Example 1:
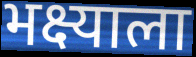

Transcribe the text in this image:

भक्ष्याला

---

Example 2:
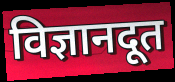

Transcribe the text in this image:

विज्ञानदूत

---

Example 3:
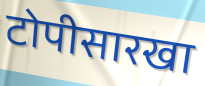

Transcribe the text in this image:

टोपीसारखा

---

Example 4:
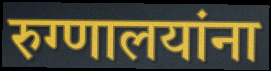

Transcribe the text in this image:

रुग्णालयांना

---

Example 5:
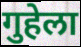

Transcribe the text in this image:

गुहेला